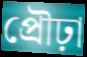
প্রৌঢ়া